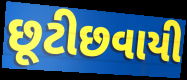
છૂટીછવાયી